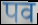
पव